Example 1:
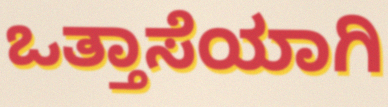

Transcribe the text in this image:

ಒತ್ತಾಸೆಯಾಗಿ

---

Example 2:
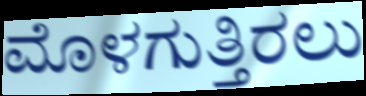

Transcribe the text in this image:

ಮೊಳಗುತ್ತಿರಲು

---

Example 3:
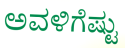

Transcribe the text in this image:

ಅವಳಿಗೆಷ್ಟು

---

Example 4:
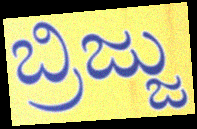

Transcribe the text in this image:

ಬ್ರಿಜ್ಜು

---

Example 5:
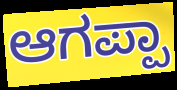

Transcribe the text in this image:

ಆಗಪ್ಪಾ